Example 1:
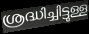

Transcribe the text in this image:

ശ്രദ്ധിച്ചിട്ടുള്ള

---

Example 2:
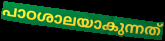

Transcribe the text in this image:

പാഠശാലയാകുന്നത്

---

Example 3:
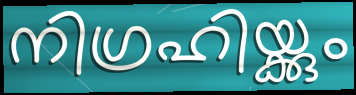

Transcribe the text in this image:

നിഗ്രഹിയ്ക്കും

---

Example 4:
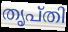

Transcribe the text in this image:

തൃപ്തി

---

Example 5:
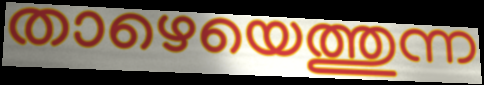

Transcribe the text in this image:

താഴെയെത്തുന്ന